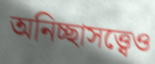
অনিচ্ছাসত্ত্বেও